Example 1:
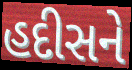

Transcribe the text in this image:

હદીસને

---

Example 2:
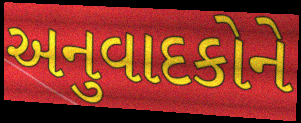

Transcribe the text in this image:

અનુવાદકોને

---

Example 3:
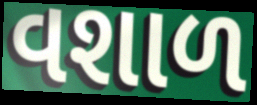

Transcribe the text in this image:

વશાળ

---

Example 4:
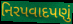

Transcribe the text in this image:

નિરપવાદપણું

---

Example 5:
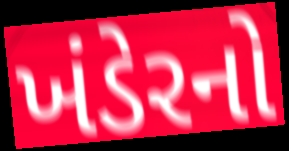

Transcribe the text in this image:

ખંડેરનો